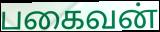
பகைவன்